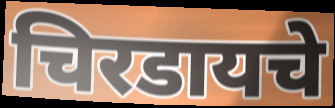
चिरडायचे